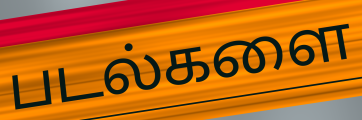
படல்களை